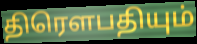
திரெளபதியும்